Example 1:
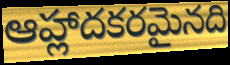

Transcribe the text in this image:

ఆహ్లాదకరమైనది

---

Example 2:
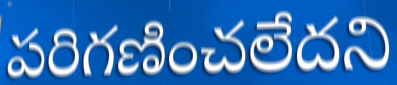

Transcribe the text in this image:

పరిగణించలేదని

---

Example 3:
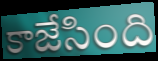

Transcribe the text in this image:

కాజేసింది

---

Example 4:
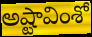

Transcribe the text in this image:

అష్టావింశో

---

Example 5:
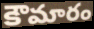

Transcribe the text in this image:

కౌమారం